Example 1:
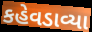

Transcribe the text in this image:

કહેવડાવ્યા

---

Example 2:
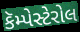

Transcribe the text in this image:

કૅમ્પેસ્ટેરોલ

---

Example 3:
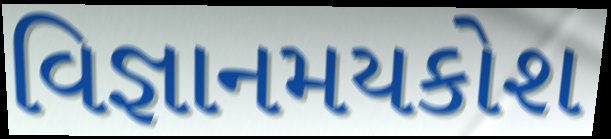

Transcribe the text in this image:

વિજ્ઞાનમયકોશ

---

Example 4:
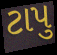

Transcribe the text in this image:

ટાપુ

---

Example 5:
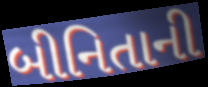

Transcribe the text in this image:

બીનિતાની